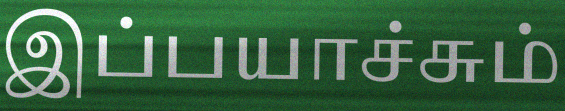
இப்பயாச்சும்